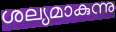
ശല്യമാകുന്നു